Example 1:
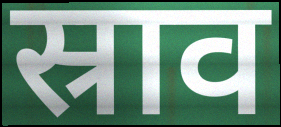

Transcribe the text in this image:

स्राव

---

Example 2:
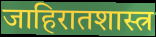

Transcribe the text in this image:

जाहिरातशास्त्र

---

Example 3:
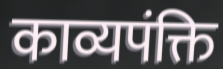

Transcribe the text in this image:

काव्यपंक्ति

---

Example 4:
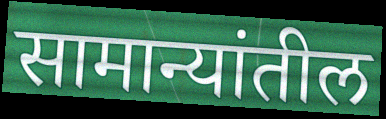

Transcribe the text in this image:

सामान्यांतील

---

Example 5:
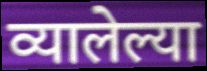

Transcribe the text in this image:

व्यालेल्या